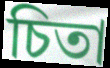
চিতা